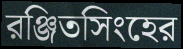
রঞ্জিতসিংহের